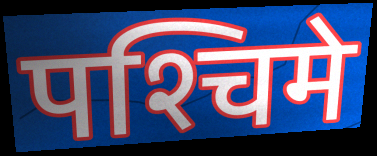
पश्चिमे